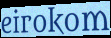
eirokom